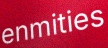
enmities